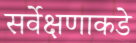
सर्वेक्षणाकडे